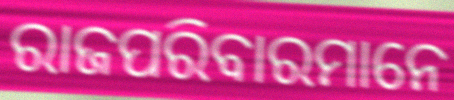
ରାଜପରିବାରମାନେ